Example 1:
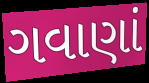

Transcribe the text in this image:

ગવાણાં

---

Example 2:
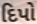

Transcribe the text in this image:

દિપો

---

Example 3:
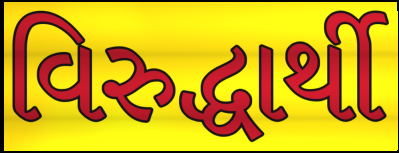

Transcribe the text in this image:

વિરુદ્ધાર્થી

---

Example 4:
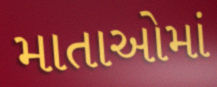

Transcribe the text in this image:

માતાઓમાં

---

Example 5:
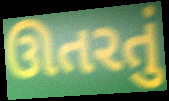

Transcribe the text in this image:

ઊતરતું